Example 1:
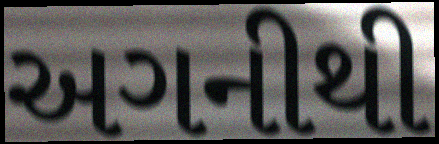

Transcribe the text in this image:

અગનીથી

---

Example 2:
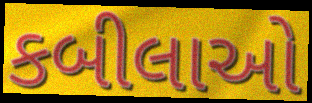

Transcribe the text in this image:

કબીલાઓ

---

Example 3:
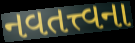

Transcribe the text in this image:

નવતત્ત્વના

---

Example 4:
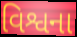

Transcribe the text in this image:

વિશ્વના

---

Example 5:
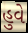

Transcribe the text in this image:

હુવે